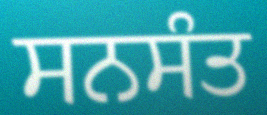
ਸਨਸੰਤ